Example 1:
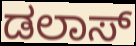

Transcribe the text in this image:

ಡಲಾಸ್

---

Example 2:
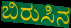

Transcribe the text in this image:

ಬಿರುಸಿನ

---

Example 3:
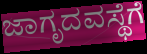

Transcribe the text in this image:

ಜಾಗೃದವಸ್ಥೆಗೆ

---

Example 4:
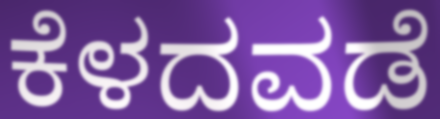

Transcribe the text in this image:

ಕೆಳದವಡೆ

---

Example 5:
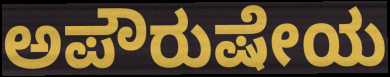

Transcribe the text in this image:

ಅಪೌರುಷೇಯ